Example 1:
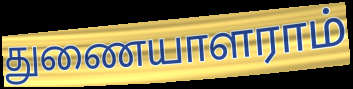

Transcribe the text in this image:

துணையாளராம்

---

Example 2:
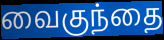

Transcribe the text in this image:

வைகுந்தை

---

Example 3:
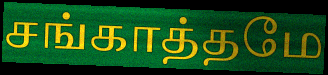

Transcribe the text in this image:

சங்காத்தமே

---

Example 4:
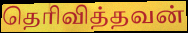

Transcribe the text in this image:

தெரிவித்தவன்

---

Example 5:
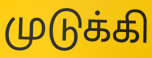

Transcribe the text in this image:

முடுக்கி